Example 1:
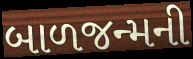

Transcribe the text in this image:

બાળજન્મની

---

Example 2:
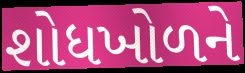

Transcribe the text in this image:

શોધખોળને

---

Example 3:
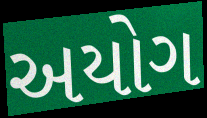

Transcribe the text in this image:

અયોગ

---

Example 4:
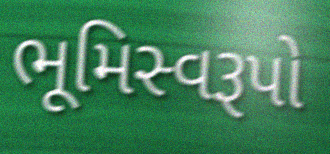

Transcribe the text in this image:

ભૂમિસ્વરૂપો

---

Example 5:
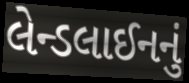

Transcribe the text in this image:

લેન્ડલાઈનનું